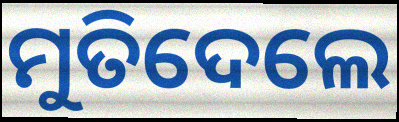
ମୁତିଦେଲେ